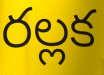
రల్లక